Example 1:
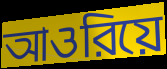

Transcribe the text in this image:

আওরিয়ে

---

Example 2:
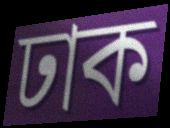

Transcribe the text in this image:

ঢাক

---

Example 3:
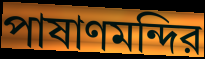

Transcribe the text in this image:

পাষাণমন্দির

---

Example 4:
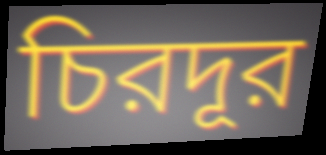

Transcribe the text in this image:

চিরদূর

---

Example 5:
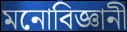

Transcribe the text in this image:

মনোবিজ্ঞানী